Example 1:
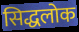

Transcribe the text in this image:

सिद्धलोक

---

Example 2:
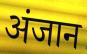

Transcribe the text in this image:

अंजान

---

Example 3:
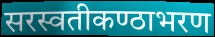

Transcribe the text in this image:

सरस्वतीकण्ठाभरण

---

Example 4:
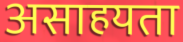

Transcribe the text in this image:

असाहयता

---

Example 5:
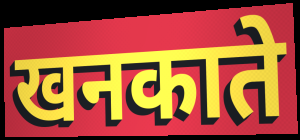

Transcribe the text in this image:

खनकाते